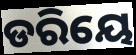
ଡରିୟେ